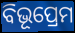
ବିଭୂପ୍ରେମ